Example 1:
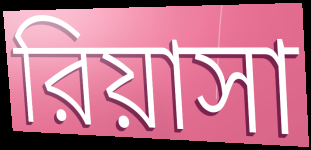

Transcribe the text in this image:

রিয়াসা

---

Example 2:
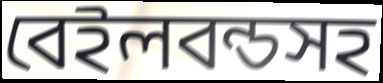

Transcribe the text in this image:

বেইলবন্ডসহ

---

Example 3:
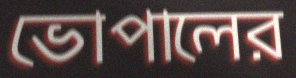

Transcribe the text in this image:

ভোপালের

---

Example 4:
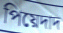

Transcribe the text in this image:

পিয়েদাদ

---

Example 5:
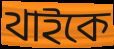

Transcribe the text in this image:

থাইকে